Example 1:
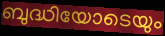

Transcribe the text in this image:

ബുദ്ധിയോടെയും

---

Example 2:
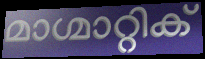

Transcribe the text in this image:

മാഗ്മാറ്റിക്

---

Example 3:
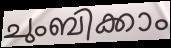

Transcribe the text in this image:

ചുംബിക്കാം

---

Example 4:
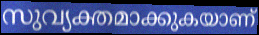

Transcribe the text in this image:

സുവ്യക്തമാക്കുകയാണ്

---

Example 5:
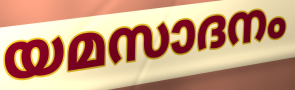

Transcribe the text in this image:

യമസാദനം